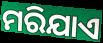
ମରିଯାଏ